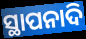
ସ୍ଥାପନାଦି